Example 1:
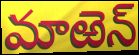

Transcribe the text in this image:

మాఱెన్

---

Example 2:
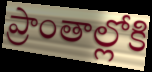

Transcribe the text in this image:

ప్రాంతాల్లోకి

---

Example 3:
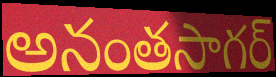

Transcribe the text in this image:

అనంతసాగర్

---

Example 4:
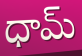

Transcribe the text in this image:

ధామ్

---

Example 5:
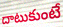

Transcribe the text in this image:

దాటుకుంటే